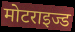
मोटराइज्ड